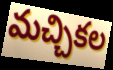
మచ్చికల